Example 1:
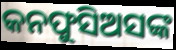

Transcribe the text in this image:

କନଫୁସିଅସଙ୍କ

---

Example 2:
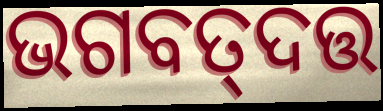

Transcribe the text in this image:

ଭଗବତ୍‌ଦତ୍ତ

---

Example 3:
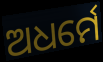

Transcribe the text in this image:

ଅଧର୍ମେ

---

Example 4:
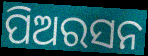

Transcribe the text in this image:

ପିଅରସନ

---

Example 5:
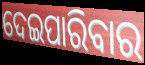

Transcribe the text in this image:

ଦେଇପାରିବାର